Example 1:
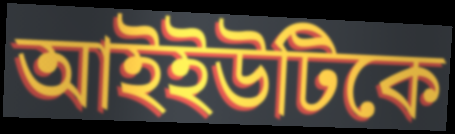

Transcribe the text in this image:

আইইউটিকে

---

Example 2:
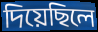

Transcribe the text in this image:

দিয়েছিলে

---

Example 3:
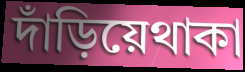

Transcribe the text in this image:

দাঁড়িয়েথাকা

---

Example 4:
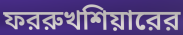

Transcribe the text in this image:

ফররুখশিয়ারের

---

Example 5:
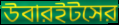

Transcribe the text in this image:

উবারইটসের